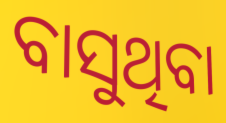
ବାସୁଥିବା